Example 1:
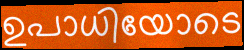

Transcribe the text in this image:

ഉപാധിയോടെ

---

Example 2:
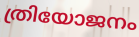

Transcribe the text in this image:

ത്രിയോജനം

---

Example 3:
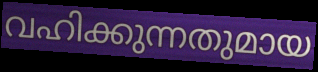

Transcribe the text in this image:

വഹിക്കുന്നതുമായ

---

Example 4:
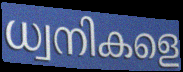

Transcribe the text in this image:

ധ്വനികളെ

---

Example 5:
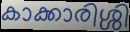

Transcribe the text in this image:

കാക്കാരിശ്ശി